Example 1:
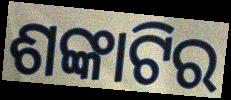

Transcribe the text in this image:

ଶଙ୍କାଟିର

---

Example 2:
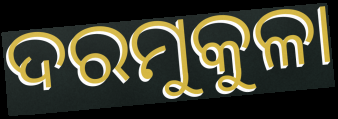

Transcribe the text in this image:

ଦରମୁକୁଳା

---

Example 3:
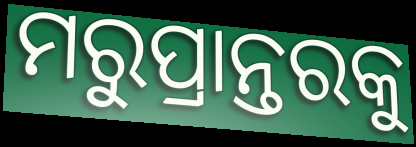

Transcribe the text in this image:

ମରୁପ୍ରାନ୍ତରକୁ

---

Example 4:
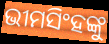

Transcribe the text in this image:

ଭୀମସିଂହଙ୍କୁ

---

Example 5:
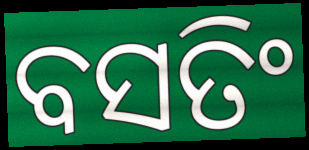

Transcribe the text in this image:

ବସତିଂ